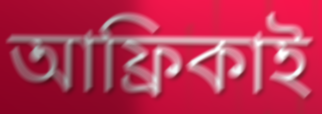
আফ্রিকাই